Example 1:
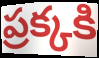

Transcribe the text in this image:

ప్రక్కకి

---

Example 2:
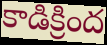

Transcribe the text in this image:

కాడిక్రింద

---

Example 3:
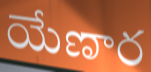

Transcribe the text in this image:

యేణార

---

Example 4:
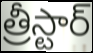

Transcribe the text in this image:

త్రీస్టార్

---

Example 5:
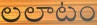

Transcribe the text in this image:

లలాటం